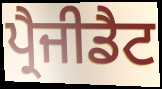
ਪ੍ਰੈਜੀਡੈਟ